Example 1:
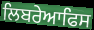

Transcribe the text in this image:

ਲਿਬਰੇਆਫਿਸ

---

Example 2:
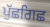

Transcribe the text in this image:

ਪੁੱਛਗਿਛ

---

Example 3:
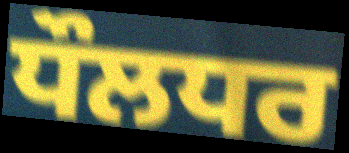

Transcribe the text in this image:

ਧੌਲਧਰ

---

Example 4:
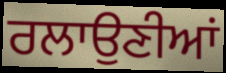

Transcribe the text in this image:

ਰਲਾਉਣੀਆਂ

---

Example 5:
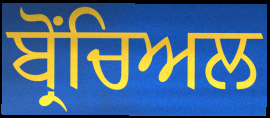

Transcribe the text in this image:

ਬ੍ਰੋਂਚਿਅਲ